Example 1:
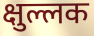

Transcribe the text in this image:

क्षुल्लक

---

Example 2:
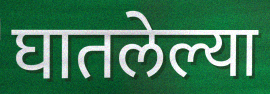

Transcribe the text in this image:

घातलेल्या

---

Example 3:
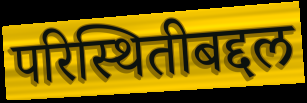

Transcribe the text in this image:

परिस्थितीबद्दल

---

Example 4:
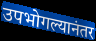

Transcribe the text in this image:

उपभोगल्यानंतर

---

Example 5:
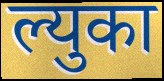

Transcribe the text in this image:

ल्युका